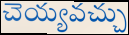
చెయ్యవచ్చు